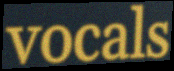
vocals